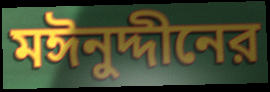
মঈনুদ্দীনের